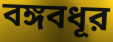
বঙ্গবধূর